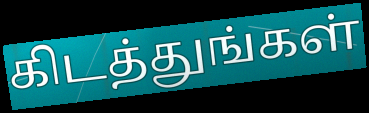
கிடத்துங்கள்